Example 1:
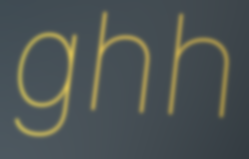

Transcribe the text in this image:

ghh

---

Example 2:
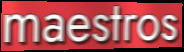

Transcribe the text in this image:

maestros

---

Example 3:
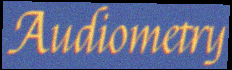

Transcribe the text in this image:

Audiometry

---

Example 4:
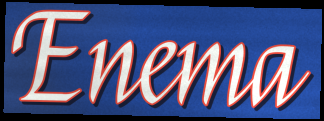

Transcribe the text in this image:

Enema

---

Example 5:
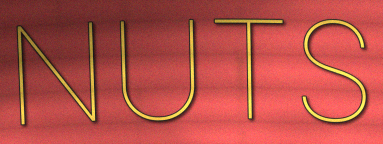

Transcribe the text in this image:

NUTS